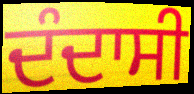
ਦੰਦਾਸੀ